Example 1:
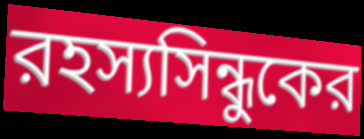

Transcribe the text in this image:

রহস্যসিন্ধুকের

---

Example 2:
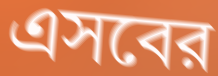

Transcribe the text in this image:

এসবের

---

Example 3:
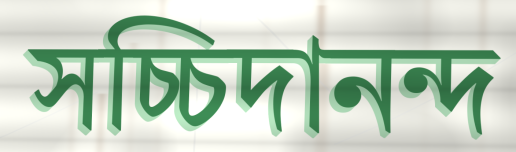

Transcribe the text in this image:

সচ্চিদানন্দ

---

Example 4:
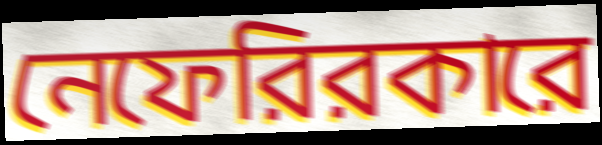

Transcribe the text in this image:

নেফেরিরকারে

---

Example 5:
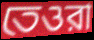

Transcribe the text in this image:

তেওরা